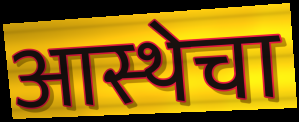
आस्थेचा